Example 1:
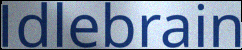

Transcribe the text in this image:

Idlebrain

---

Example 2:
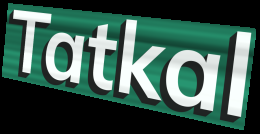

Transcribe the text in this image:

Tatkal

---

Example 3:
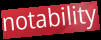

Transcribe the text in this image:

notability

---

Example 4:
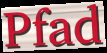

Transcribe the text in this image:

Pfad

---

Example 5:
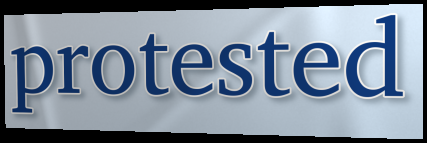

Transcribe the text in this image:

protested